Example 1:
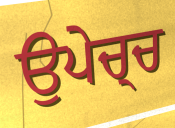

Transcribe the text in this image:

ਉਪੇਚ੍ਚ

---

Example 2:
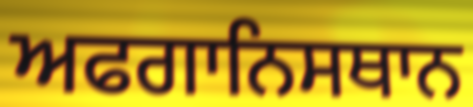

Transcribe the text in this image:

ਅਫਗਾਨਿਸਥਾਨ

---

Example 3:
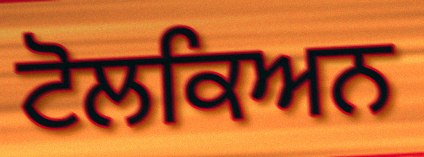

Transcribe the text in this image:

ਟੋਲਕਿਅਨ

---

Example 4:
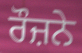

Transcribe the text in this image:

ਰੌਜ਼ਨੇ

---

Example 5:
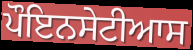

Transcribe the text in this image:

ਪੌਇਨਸੇਟੀਆਸ